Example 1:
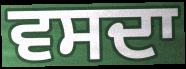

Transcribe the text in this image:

ਵਸਦਾ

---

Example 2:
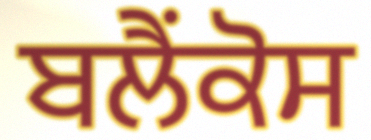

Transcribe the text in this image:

ਬਲੈਂਕੋਸ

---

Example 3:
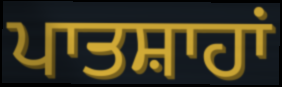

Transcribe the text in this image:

ਪਾਤਸ਼ਾਹਾਂ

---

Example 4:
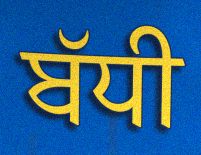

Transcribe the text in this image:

ਬੱਧੀ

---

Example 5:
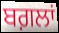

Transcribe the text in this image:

ਬਗ਼ਲਾਂ